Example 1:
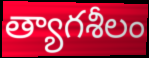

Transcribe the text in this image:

త్యాగశీలం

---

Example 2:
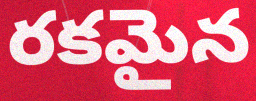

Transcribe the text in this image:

రకమైన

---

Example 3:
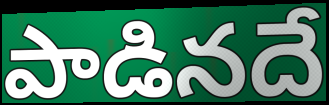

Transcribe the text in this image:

పాడినదే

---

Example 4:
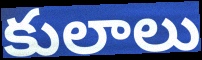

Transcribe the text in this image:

కులాలు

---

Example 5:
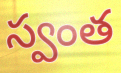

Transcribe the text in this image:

స్వంత